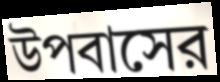
উপবাসের